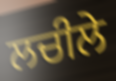
ਲਚੀਲੇ